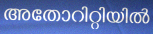
അതോറിറ്റിയിൽ